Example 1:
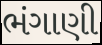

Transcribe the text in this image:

ભંગાણી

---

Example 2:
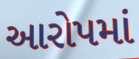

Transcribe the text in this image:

આરોપમાં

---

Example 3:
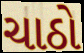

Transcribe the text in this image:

ચાઠો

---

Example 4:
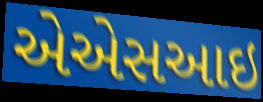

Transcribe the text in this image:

એએસઆઇ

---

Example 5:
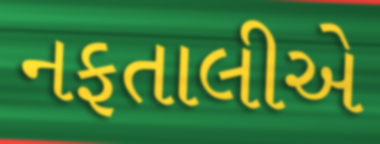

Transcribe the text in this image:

નફતાલીએ